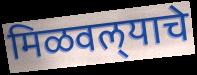
मिळवल्याचे